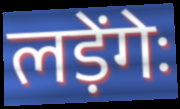
लड़ेंगेः